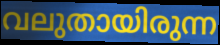
വലുതായിരുന്ന